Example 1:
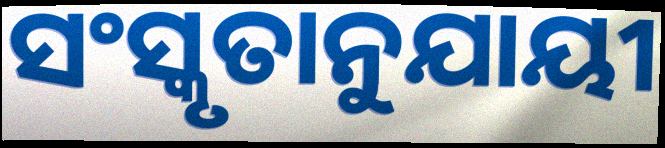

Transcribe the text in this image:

ସଂସ୍କୃତାନୁଯାୟୀ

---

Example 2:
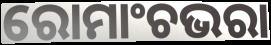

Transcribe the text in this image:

ରୋମାଂଚଭରା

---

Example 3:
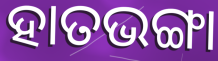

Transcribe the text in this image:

ହାତଭଙ୍ଗା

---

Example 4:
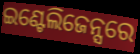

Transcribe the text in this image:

ଇଣ୍ଟେଲିଜେନ୍ସରେ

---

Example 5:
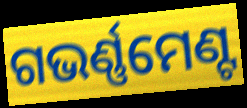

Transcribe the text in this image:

ଗଭର୍ଣ୍ଣମେଣ୍ଟ